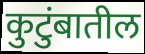
कुटुंबातील